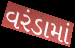
વરંડામાં